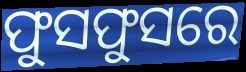
ଫୁସଫୁସରେ